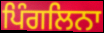
ਪਿੰਗਲਿਨਾ